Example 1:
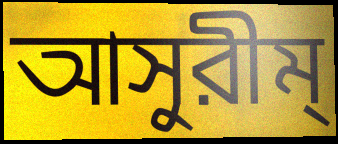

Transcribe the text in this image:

আসুরীম্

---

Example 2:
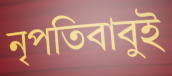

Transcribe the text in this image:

নৃপতিবাবুই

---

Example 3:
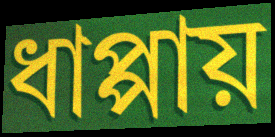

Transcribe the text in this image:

ধাপ্পায়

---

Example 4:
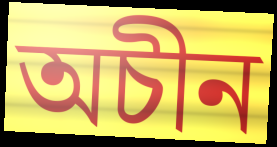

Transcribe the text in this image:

অচীন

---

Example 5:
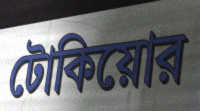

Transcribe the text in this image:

টোকিয়োর